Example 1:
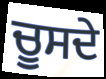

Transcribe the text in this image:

ਚੂਸਦੇ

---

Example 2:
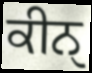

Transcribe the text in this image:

ਕੀਨੑ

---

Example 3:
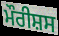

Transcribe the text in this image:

ਮੌਰੀਸ਼ਸ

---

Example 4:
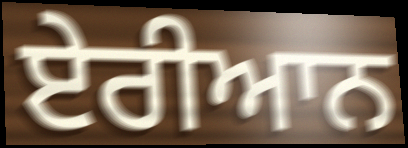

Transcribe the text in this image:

ਏਰੀਆਨ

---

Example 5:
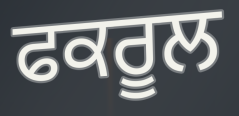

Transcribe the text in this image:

ਫਕਰੂਲ